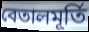
বেতালমূর্তি